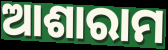
ଆଶାରାମ